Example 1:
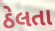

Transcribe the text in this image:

ઠેલતા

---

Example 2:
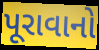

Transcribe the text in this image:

પૂરાવાનો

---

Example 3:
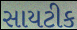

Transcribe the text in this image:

સાયટીક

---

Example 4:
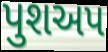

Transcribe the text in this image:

પુશઅપ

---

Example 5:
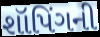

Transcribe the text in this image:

શૉપિંગની